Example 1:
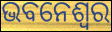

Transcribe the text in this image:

ଭବନେଶ୍ୱର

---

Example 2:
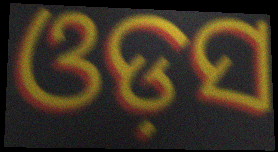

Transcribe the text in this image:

ଓଡ଼ସ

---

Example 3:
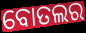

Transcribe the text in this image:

ବୋତଲର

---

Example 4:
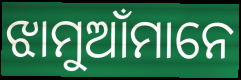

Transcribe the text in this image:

ଝାମୁଆଁମାନେ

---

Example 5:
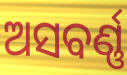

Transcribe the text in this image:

ଅସବର୍ଣ୍ଣ